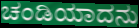
ಚಂಡಿಯಾದನು